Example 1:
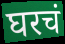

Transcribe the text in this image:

घरचं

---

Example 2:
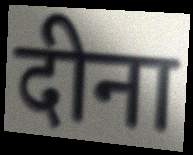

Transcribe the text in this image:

दीना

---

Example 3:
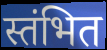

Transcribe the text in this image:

स्तंभित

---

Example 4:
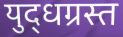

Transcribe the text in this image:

युद्धग्रस्त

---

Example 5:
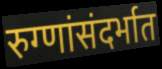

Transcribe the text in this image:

रुग्णांसंदर्भात